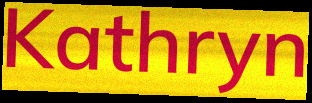
Kathryn